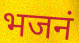
भजनं